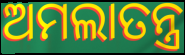
ଅମଲାତନ୍ତ୍ର